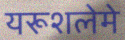
यरूशलेमे